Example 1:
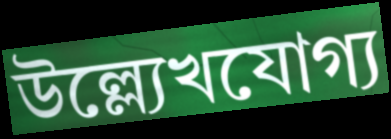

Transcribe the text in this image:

উল্ল্যেখযোগ্য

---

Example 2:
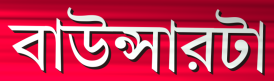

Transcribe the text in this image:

বাউন্সারটা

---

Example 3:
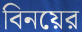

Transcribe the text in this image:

বিনয়ের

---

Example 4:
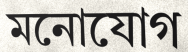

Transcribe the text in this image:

মনোযোগ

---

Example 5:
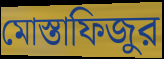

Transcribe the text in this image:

মোস্তাফিজুর